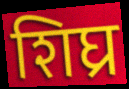
शिघ्र